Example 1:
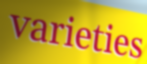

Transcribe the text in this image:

varieties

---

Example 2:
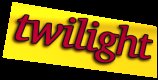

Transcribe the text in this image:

twilight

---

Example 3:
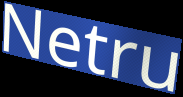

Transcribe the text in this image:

Netru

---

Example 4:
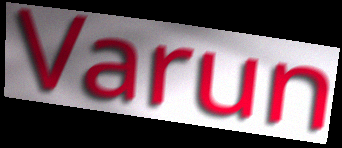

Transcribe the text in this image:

Varun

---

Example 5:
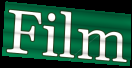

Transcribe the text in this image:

Film